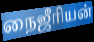
நைஜீரியன்